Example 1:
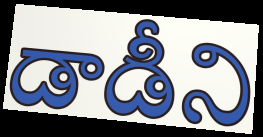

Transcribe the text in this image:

డాడీని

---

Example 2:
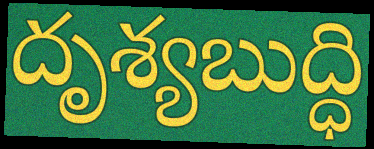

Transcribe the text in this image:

దృశ్యబుద్ధి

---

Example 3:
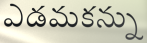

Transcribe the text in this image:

ఎడమకన్ను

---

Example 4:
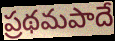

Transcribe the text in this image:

ప్రథమపాదే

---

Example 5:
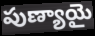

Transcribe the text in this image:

పుణ్యాయై